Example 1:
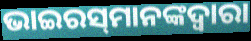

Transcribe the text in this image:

ଭାଇରସ୍‌ମାନଙ୍କଦ୍ୱାରା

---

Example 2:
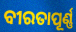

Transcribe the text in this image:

ବୀରତାପୂର୍ଣ୍ଣ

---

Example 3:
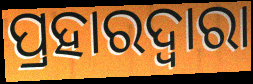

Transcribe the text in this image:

ପ୍ରହାରଦ୍ଵାରା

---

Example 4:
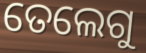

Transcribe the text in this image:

ତେଲେଗୁ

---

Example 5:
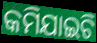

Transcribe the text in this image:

କମିଯାଇଚି